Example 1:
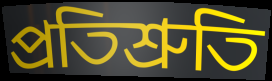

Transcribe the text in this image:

প্ৰতিশ্ৰুতি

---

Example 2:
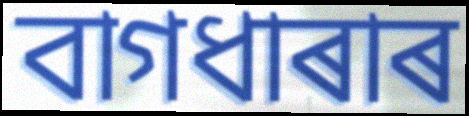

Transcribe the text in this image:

বাগধাৰাৰ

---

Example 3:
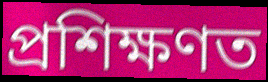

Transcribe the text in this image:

প্ৰশিক্ষণত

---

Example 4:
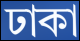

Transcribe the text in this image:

ঢাকা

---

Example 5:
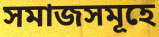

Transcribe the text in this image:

সমাজসমূহে